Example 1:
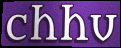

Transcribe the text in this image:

chhu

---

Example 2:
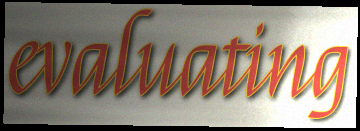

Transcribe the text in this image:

evaluating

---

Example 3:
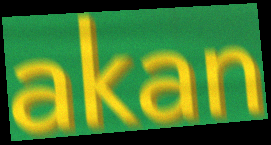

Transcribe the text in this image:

akan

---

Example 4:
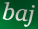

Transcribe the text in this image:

baj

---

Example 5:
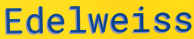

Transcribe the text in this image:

Edelweiss